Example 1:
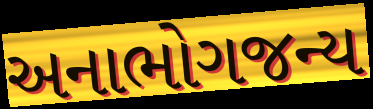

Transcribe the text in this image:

અનાભોગજન્ય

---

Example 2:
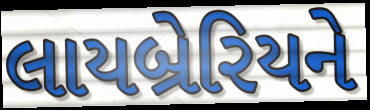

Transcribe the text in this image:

લાયબ્રેરિયને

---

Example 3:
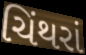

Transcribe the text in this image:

ચિંથરાં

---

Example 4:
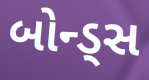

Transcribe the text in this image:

બોન્ડ્સ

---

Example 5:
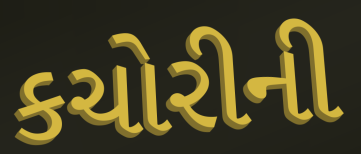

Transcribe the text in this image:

કચોરીની